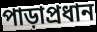
পাড়াপ্রধান